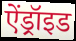
ऐंड्रॉइड